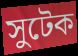
সুটেক